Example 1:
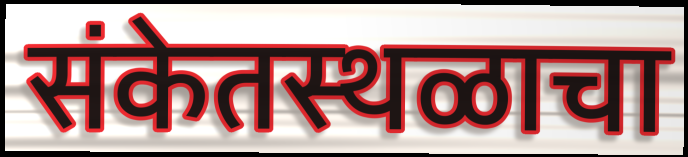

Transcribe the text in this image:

संकेतस्थळाचा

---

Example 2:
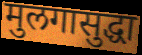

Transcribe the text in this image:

मुलगासुद्धा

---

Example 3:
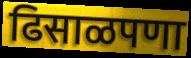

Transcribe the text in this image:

ढिसाळपणा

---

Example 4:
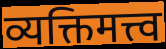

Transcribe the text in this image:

व्यक्तिमत्त्व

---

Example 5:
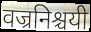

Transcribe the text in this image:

वज्रनिश्चयी